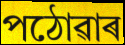
পঠোৱাৰ